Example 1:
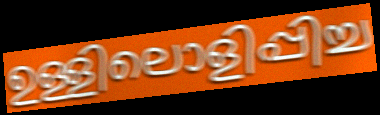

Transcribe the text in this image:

ഉള്ളിലൊളിപ്പിച്ച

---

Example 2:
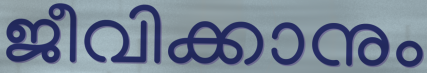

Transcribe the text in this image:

ജീവിക്കാനും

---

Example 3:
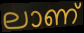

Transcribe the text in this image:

ലാണ്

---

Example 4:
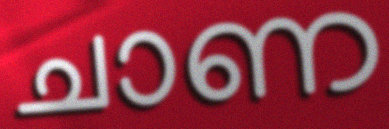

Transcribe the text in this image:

ചാണ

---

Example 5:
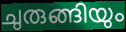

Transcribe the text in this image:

ചുരുങ്ങിയും